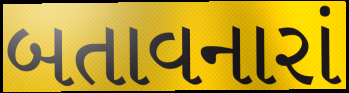
બતાવનારાં